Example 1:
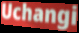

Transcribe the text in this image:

Uchangi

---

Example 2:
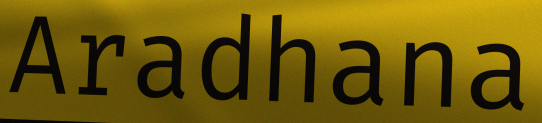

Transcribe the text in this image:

Aradhana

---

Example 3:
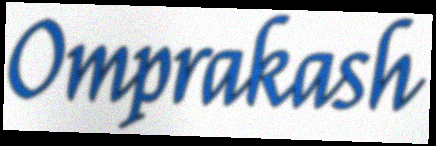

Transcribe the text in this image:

Omprakash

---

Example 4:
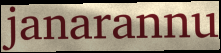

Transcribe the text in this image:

janarannu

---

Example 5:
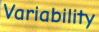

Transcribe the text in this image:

Variability